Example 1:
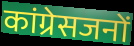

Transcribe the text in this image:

कांग्रेसजनों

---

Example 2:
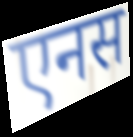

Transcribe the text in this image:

एनस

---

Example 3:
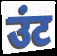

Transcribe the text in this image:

उंट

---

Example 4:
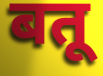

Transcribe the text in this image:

बतू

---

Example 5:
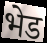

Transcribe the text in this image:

भेड